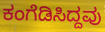
ಕಂಗೆಡಿಸಿದ್ದವು